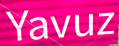
Yavuz